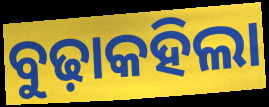
ବୁଢ଼ାକହିଲା